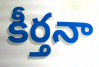
కీర్తనా